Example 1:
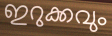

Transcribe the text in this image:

ഇറുക്കവും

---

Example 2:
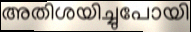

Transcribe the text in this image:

അതിശയിച്ചുപോയി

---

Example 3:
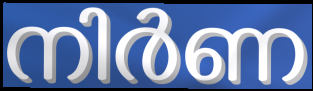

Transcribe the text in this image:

നിർണ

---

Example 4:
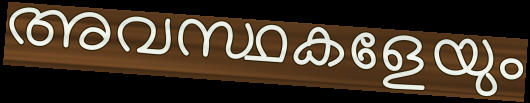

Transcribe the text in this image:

അവസ്ഥകളേയും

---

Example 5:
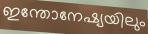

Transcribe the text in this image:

ഇന്തോനേഷ്യയിലും